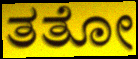
ತತೋ